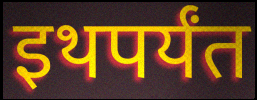
इथपर्यंत